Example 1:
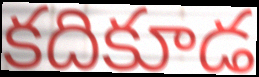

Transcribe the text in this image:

కదికూడ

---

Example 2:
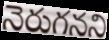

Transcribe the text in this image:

నెరుగనని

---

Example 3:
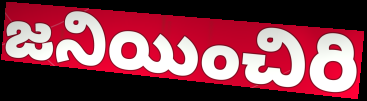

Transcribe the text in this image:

జనియించిరి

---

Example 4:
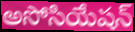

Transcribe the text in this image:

అసోసియేషన్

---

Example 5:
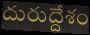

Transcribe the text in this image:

దురుద్దేశం